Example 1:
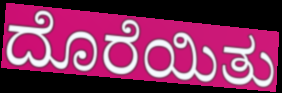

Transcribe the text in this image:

ದೊರೆಯಿತು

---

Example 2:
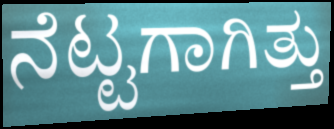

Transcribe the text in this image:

ನೆಟ್ಟಗಾಗಿತ್ತು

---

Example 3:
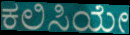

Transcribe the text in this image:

ಕಲಿಸಿಯೇ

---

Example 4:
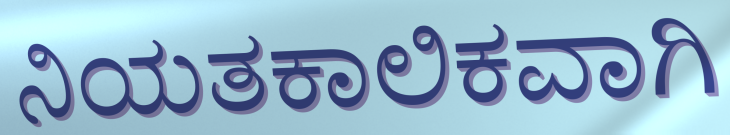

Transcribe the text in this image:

ನಿಯತಕಾಲಿಕವಾಗಿ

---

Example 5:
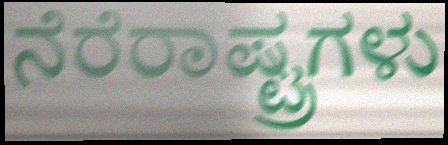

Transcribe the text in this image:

ನೆರೆರಾಷ್ಟ್ರಗಳು